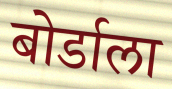
बोर्डाला